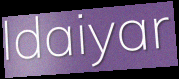
Idaiyar